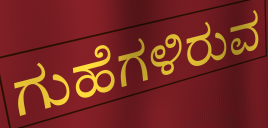
ಗುಹೆಗಳಿರುವ